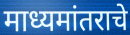
माध्यमांतराचे